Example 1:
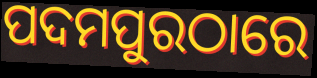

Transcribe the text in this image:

ପଦମପୁରଠାରେ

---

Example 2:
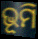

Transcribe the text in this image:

ଭୂମି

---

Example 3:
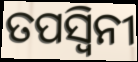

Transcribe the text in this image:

ତପସ୍ଵିନୀ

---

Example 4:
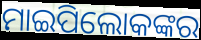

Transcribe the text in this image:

ମାଇପିଲୋକଙ୍କର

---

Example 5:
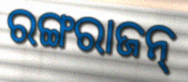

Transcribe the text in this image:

ରଙ୍ଗରାଜନ୍